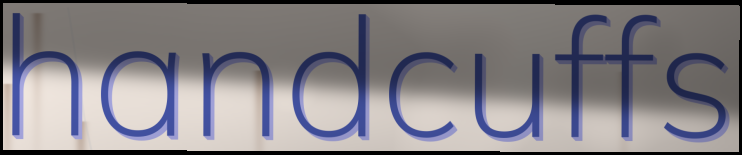
handcuffs